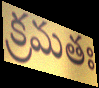
క్రమతః